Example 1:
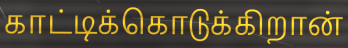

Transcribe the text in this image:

காட்டிக்கொடுக்கிறான்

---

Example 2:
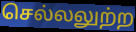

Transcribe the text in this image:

செல்லலுற்ற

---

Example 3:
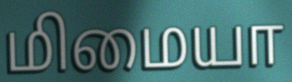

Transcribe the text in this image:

மிமையா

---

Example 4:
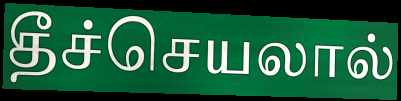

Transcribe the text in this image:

தீச்செயலால்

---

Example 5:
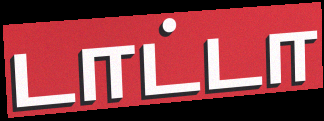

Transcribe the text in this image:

டாட்டா